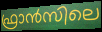
ഫ്രാൻസിലെ